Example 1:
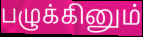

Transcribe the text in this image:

பழுக்கினும்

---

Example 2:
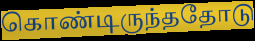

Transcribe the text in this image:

கொண்டிருந்ததோடு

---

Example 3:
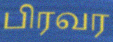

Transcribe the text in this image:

பிரவர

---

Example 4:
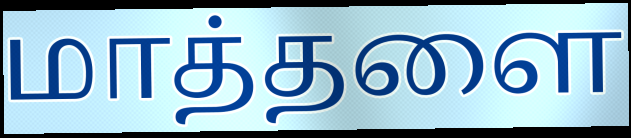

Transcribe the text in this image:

மாத்தளை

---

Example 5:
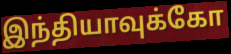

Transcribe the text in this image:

இந்தியாவுக்கோ